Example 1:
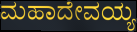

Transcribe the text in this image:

ಮಹಾದೇವಯ್ಯ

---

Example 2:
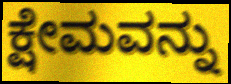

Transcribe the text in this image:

ಕ್ಷೇಮವನ್ನು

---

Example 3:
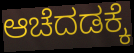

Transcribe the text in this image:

ಆಚೆದಡಕ್ಕೆ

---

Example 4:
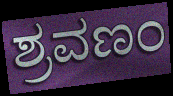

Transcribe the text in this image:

ಶ್ರವಣಂ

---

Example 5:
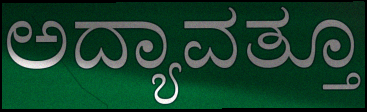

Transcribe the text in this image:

ಅದ್ಯಾವತ್ತೂ